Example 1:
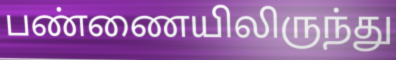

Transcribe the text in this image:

பண்ணையிலிருந்து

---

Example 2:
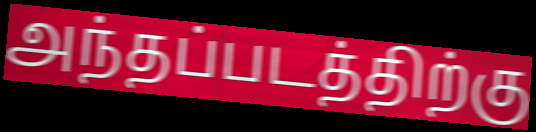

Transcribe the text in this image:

அந்தப்படத்திற்கு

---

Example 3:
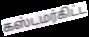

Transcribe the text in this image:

கஸ்டமர்கிட்ட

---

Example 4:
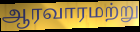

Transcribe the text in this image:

ஆரவாரமற்று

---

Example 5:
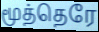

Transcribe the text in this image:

மூத்தெரே